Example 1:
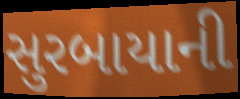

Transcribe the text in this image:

સુરબાયાની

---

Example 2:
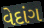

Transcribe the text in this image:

વેદાંગ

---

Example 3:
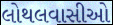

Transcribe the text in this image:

લોથલવાસીઓ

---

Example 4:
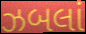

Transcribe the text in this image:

ઝબલાં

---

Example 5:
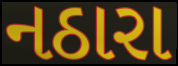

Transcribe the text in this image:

નઠારા